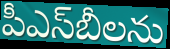
పీఎస్‌బీలను